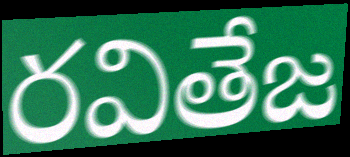
రవితేజ